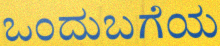
ಒಂದುಬಗೆಯ